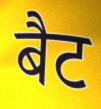
बैट